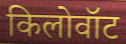
किलोवॉट